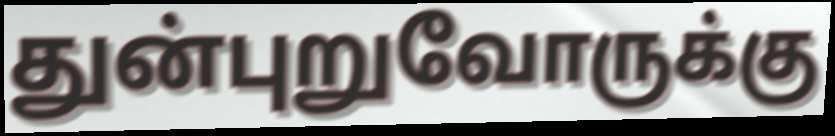
துன்புறுவோருக்கு